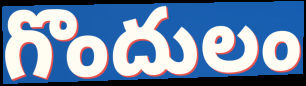
గొందులం